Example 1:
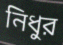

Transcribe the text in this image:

নিধুর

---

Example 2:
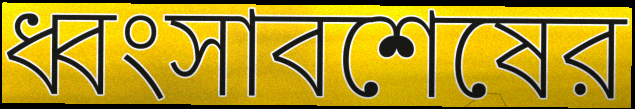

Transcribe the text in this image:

ধ্বংসাবশেষের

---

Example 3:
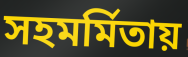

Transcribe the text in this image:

সহমর্মিতায়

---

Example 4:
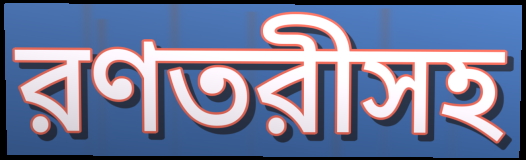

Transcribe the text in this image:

রণতরীসহ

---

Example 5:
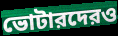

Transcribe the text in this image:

ভোটারদেরও